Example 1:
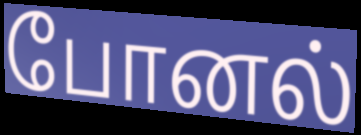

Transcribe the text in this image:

போனல்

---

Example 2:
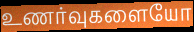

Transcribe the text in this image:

உணர்வுகளையோ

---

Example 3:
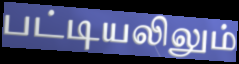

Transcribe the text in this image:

பட்டியலிலும்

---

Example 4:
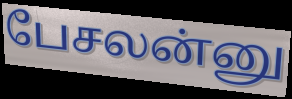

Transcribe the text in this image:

பேசலன்னு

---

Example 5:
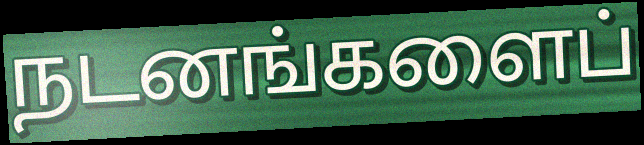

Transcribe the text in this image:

நடனங்களைப்